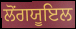
ਲੋਂਗਯੂਇਲ